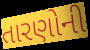
તારણોની